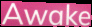
Awake